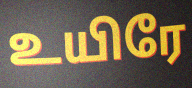
உயிரே